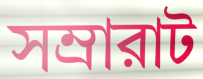
সম্রারাট